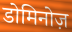
डोमिनोज़